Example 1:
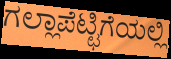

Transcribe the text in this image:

ಗಲ್ಲಾಪೆಟ್ಟಿಗೆಯಲ್ಲಿ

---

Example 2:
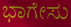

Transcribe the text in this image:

ಭಾಗೇಸು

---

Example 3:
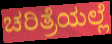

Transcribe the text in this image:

ಚರಿತ್ರೆಯಲ್ಲೆ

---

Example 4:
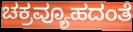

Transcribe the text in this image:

ಚಕ್ರವ್ಯೂಹದಂತೆ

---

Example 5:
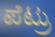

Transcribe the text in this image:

ಪೆಟ್ರು